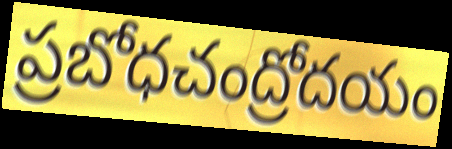
ప్రబోధచంద్రోదయం